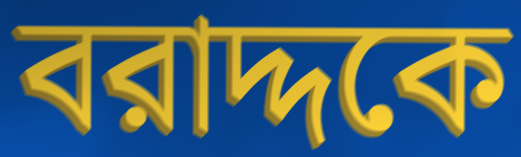
বরাদ্দকে